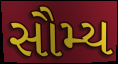
સૌમ્ય